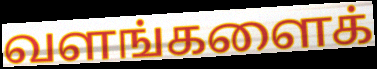
வளங்களைக்